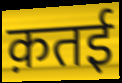
क़तई